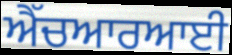
ਐੱਚਆਰਆਈ